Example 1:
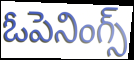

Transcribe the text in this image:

ఓపెనింగ్స్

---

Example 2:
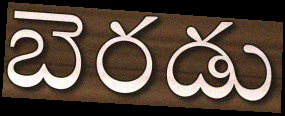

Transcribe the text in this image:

బెరడు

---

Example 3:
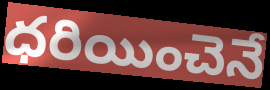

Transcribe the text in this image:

ధరియించెనే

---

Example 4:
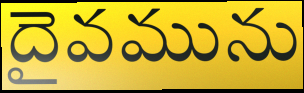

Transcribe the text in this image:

దైవమును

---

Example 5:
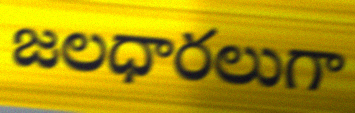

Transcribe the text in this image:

జలధారలుగా